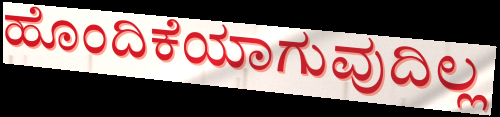
ಹೊಂದಿಕೆಯಾಗುವುದಿಲ್ಲ